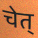
चेत्